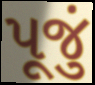
પૂજું